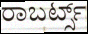
ರಾಬರ್ಟ್ಸ್